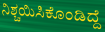
ನಿಶ್ಚಯಿಸಿಕೊಂಡಿದ್ದೆ